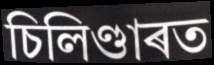
চিলিণ্ডাৰত